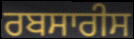
ਰਬਸਾਰੀਸ